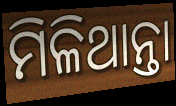
ମିଳିଥାନ୍ତା